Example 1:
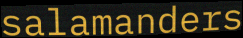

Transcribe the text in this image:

salamanders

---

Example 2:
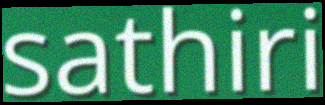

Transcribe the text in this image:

sathiri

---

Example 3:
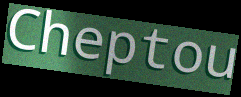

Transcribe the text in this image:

Cheptou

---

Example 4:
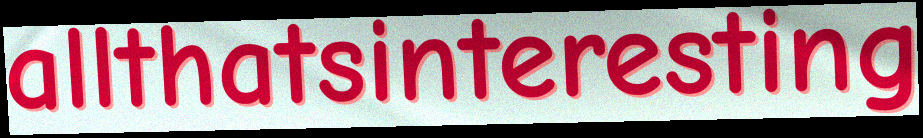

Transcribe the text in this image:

allthatsinteresting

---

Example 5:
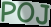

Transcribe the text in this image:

POJ